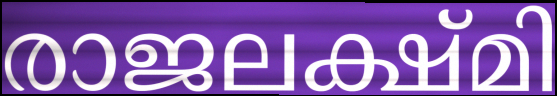
രാജലക്ഷ്മി